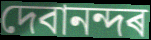
দেবানন্দৰ